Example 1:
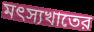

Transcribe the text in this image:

মৎস্যখাতের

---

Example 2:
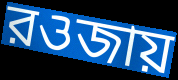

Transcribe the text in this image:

রওজায়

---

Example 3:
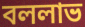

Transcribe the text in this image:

বললাভ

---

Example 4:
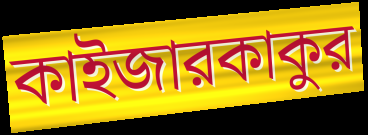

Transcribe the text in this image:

কাইজারকাকুর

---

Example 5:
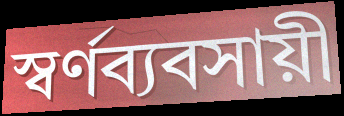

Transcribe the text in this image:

স্বর্ণব্যবসায়ী